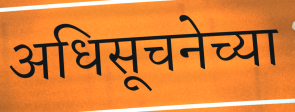
अधिसूचनेच्या